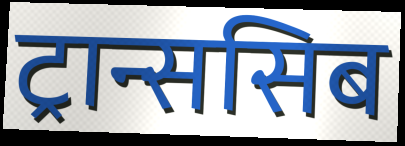
ट्रान्ससिब